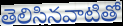
తెలిసినవాటితో